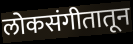
लोकसंगीतातून